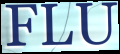
FLU